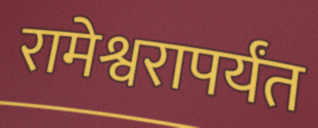
रामेश्वरापर्यंत